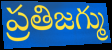
ప్రతిజగ్ము